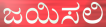
ಜಯಿಸಲಿ